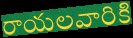
రాయలవారికి